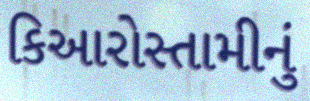
કિઆરોસ્તામીનું